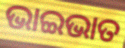
ଭାଇଭାତ